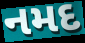
નમદ